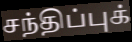
சந்திப்புக்